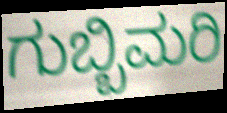
ಗುಬ್ಬಿಮರಿ